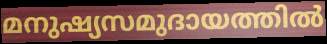
മനുഷ്യസമുദായത്തിൽ